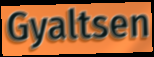
Gyaltsen